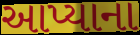
આપ્યાના